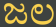
ಜಲ